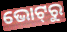
ଭୋଟ୍‌ରୁ